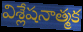
విశ్లేషనాత్మక